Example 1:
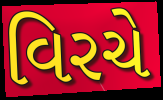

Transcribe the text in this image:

વિરચે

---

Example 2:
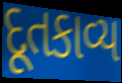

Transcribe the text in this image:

દૂતકાવ્ય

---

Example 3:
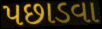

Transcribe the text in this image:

પછાડવા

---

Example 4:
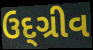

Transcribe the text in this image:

ઉદ્ગ્રીવ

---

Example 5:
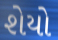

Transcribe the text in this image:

શેયો